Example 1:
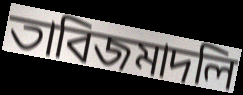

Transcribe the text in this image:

তাবিজমাদলি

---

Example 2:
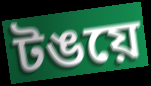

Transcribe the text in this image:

টঙয়ে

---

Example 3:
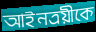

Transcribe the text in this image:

আইনত্রয়ীকে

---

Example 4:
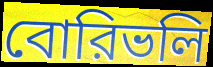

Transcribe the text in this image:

বোরিভলি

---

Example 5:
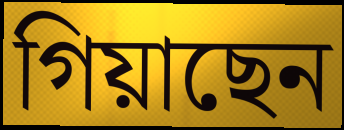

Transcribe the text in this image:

গিয়াছেন